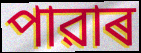
পাৱাৰ